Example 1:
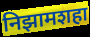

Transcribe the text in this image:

निझामशहा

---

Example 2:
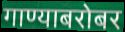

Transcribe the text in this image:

गाण्याबरोबर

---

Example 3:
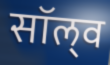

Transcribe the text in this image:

सॉल्व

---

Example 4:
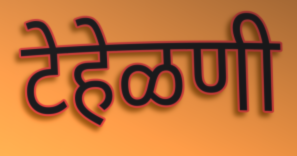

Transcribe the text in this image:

टेहेळणी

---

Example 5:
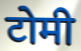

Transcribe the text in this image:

टोमी